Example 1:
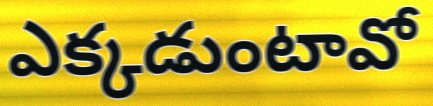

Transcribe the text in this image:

ఎక్కడుంటావో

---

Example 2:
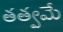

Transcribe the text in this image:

తత్వమే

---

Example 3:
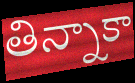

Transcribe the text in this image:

తిన్నాకా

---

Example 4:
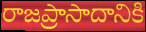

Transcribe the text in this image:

రాజప్రాసాదానికి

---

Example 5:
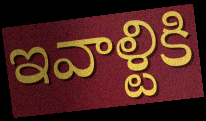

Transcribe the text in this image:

ఇవాళ్టికి